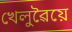
খেলুৱৈয়ে